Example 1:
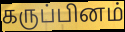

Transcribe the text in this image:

கருப்பினம்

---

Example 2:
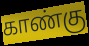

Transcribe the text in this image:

காண்கு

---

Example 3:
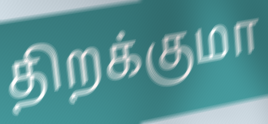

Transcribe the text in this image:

திறக்குமா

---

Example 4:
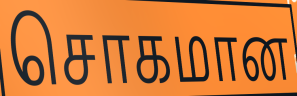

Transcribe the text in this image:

சொகமான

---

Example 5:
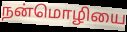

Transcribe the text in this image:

நன்மொழியை